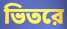
ভিতরে